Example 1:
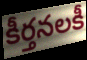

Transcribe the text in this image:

కీర్తనలకీ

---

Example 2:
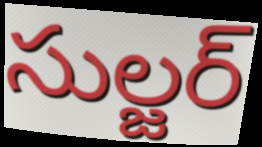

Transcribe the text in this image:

సుల్జర్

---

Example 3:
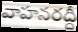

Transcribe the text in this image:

వాహనరద్దీ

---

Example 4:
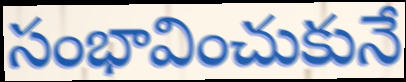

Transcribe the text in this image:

సంభావించుకునే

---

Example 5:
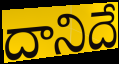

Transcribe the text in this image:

దానిదే